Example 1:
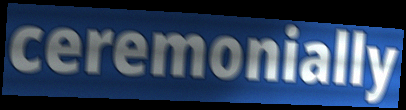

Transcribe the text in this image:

ceremonially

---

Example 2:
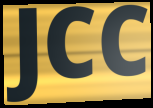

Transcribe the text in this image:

JCC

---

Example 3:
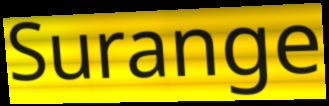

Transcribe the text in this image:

Surange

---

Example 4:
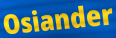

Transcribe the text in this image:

Osiander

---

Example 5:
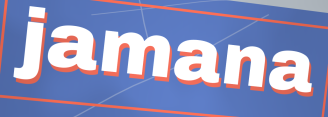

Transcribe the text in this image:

jamana